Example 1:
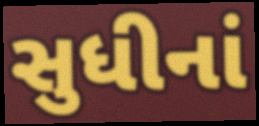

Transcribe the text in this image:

સુધીનાં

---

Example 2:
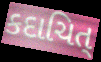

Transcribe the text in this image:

કદાચિત્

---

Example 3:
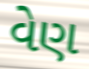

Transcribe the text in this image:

વેણ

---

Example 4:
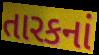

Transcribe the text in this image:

તારકનાં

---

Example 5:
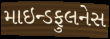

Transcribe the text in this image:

માઇન્ડફુલનેસ